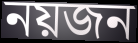
নয়জন